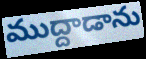
ముద్దాడాను